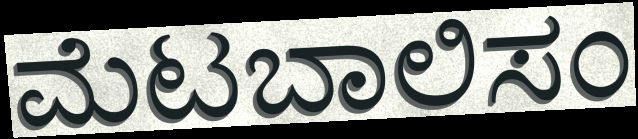
ಮೆಟಬಾಲಿಸಂ